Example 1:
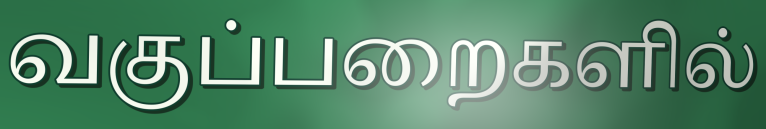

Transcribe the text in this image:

வகுப்பறைகளில்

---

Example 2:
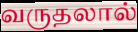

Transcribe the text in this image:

வருதலால்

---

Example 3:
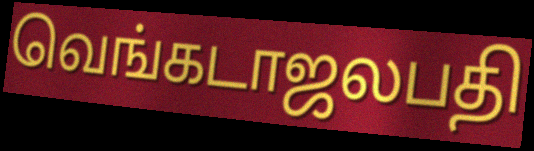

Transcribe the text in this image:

வெங்கடாஜலபதி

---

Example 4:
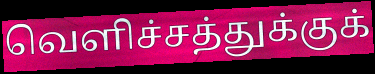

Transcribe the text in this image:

வெளிச்சத்துக்குக்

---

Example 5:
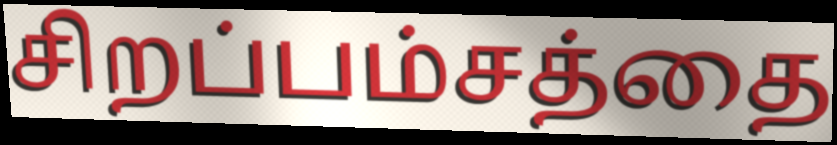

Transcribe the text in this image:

சிறப்பம்சத்தை